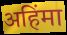
अहिंमा